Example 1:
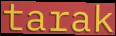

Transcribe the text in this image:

tarak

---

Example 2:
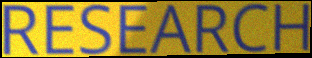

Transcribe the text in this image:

RESEARCH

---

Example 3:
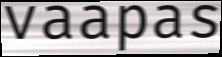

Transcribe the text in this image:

vaapas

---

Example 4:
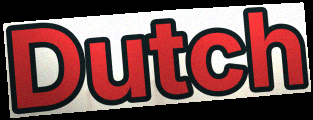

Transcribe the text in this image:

Dutch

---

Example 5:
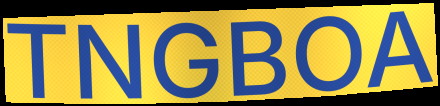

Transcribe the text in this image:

TNGBOA